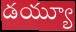
డయ్యూ